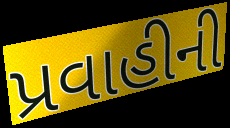
પ્રવાહીની